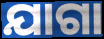
ଯାଗା